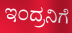
ಇಂದ್ರನಿಗೆ